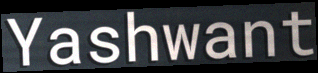
Yashwant